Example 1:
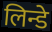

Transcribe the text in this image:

लिन्डे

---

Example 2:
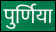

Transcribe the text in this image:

पुर्णिया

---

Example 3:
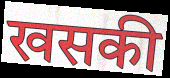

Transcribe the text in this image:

खसकी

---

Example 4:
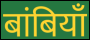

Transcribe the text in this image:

बांबियाँ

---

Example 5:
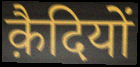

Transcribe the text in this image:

क़ैदियों